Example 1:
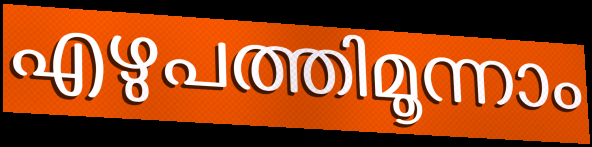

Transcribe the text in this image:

എഴുപത്തിമൂന്നാം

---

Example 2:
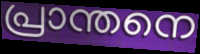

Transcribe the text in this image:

പ്രാന്തനെ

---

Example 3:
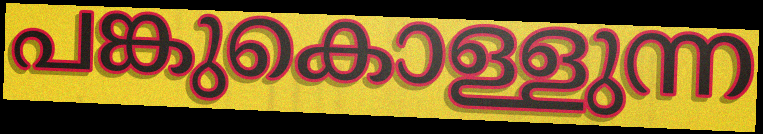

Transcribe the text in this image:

പങ്കുകൊള്ളുന്ന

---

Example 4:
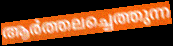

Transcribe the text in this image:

ആർത്തലച്ചെത്തുന്ന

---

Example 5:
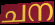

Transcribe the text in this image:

ചന